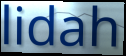
lidah